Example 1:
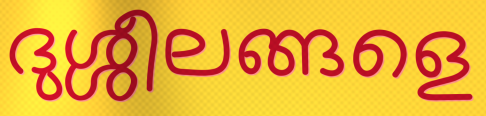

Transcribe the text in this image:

ദുശ്ശീലങ്ങളെ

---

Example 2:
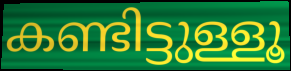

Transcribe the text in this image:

കണ്ടിട്ടുള്ളൂ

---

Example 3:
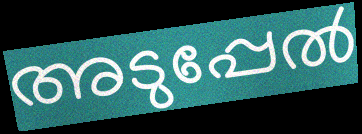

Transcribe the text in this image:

അടുപ്പേൽ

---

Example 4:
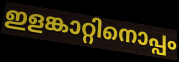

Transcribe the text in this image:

ഇളങ്കാറ്റിനൊപ്പം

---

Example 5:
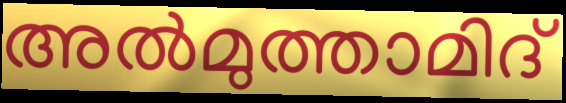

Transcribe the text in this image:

അൽമുത്താമിദ്